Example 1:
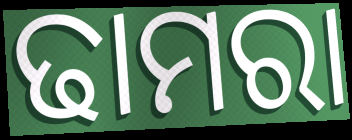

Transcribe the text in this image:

ଢାମରା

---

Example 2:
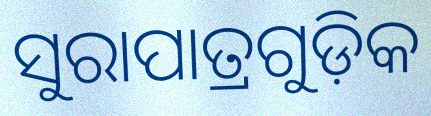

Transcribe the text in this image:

ସୁରାପାତ୍ରଗୁଡ଼ିକ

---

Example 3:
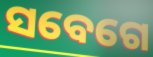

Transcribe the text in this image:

ସବେଗେ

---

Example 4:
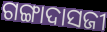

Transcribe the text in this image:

ଗଙ୍ଗାଦାସଜୀ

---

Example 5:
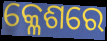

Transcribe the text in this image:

କ୍ଳେଶରେ